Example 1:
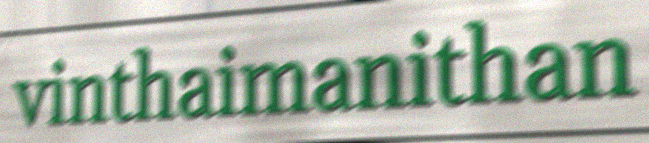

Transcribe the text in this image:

vinthaimanithan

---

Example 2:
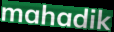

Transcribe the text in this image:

mahadik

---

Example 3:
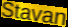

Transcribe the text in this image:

Stavan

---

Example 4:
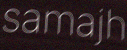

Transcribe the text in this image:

samajh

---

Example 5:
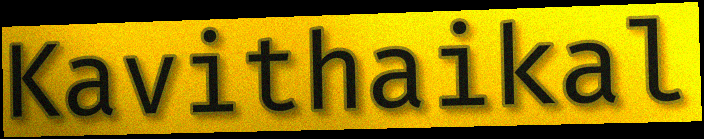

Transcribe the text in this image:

Kavithaikal